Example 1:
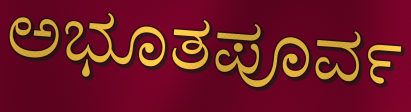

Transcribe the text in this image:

ಅಭೂತಪೂರ್ವ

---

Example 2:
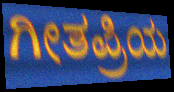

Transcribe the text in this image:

ಗೀತಪ್ರಿಯ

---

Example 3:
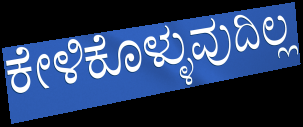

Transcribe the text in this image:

ಕೇಳಿಕೊಳ್ಳುವುದಿಲ್ಲ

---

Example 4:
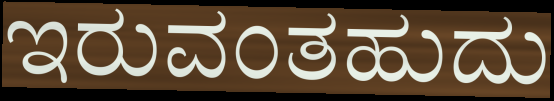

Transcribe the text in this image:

ಇರುವಂತಹುದು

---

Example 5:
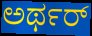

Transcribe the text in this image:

ಅರ್ಥರ್